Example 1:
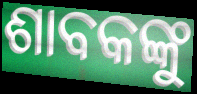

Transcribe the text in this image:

ଶାବକଙ୍କୁ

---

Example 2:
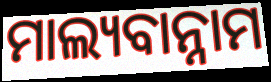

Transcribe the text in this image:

ମାଲ୍ୟବାନ୍ନାମ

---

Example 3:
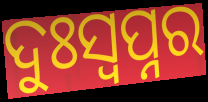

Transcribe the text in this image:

ଦୁଃସ୍ବପ୍ନର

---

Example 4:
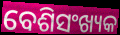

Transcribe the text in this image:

ବେଶିସଂଖ୍ୟକ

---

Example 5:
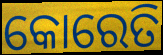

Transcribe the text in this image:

କୋରେତି